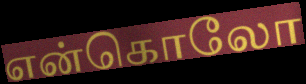
என்கொலோ